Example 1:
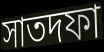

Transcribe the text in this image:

সাতদফা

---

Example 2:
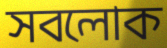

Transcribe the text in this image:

সবলোক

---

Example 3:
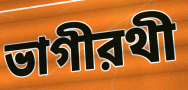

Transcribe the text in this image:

ভাগীরথী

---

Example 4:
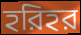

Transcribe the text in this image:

হরিহর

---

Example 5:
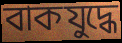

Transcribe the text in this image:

বাকযুদ্ধে